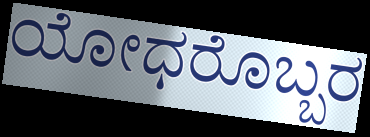
ಯೋಧರೊಬ್ಬರ